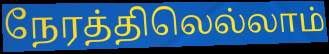
நேரத்திலெல்லாம்